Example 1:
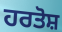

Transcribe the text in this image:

ਹਰਤੋਸ਼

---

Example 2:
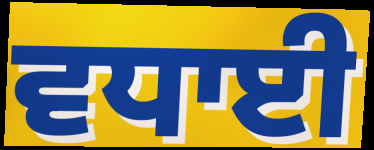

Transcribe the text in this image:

ਵਧਾਈ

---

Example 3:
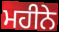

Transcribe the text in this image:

ਮਹੀਨੇ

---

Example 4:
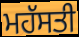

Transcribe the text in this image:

ਮਹੱਸਤੀ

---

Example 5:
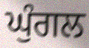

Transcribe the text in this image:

ਘੁੰਗਲ